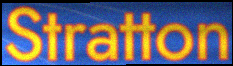
Stratton